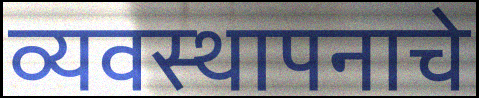
व्यवस्थापनाचे